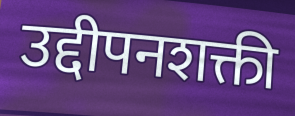
उद्दीपनशक्ती